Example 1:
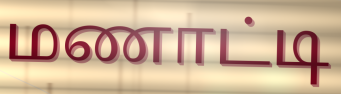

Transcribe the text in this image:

மணாட்டி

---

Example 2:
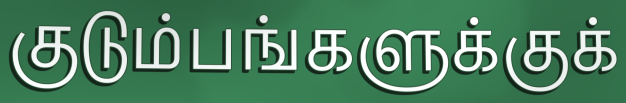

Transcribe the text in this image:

குடும்பங்களுக்குக்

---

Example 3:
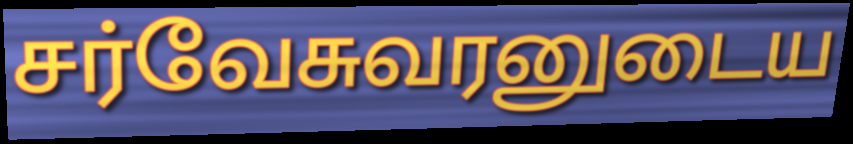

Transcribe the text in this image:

சர்வேசுவரனுடைய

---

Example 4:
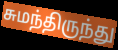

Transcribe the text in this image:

சுமந்திருந்து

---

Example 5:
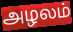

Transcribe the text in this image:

அழலம்